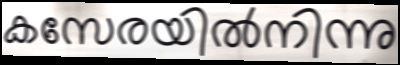
കസേരയിൽനിന്നു